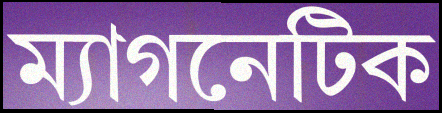
ম্যাগনেটিক